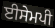
ਈਸੇਮਪੀ